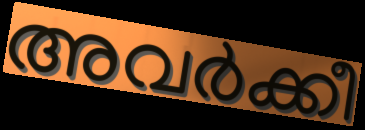
അവർക്കീ